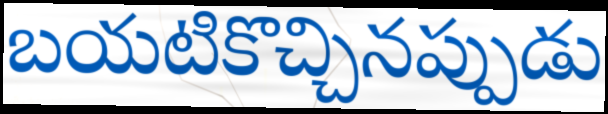
బయటికొచ్చినప్పుడు